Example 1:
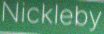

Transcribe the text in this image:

Nickleby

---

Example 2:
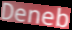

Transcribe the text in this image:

Deneb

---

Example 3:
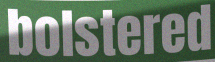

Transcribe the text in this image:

bolstered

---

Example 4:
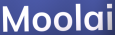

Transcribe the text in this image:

Moolai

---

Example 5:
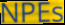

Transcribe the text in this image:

NPEs